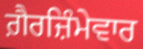
ਗ਼ੈਰਜ਼ਿੰਮੇਵਾਰ